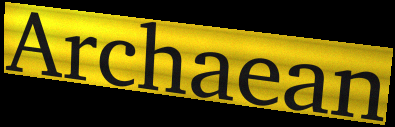
Archaean